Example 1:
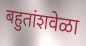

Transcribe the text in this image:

बहुतांशवेळा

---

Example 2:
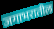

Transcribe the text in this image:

जगाभरातील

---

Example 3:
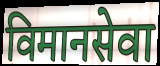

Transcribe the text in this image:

विमानसेवा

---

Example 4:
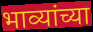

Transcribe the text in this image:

भाव्यांच्या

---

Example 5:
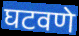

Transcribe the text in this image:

घटवणे